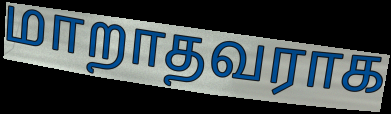
மாறாதவராக